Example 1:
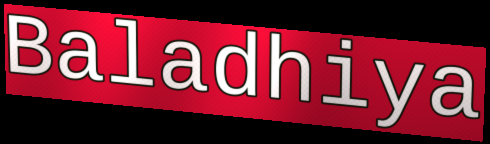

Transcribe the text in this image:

Baladhiya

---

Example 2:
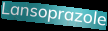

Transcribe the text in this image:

Lansoprazole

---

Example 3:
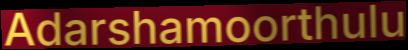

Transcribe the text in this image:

Adarshamoorthulu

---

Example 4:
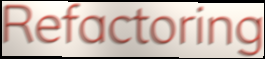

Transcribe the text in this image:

Refactoring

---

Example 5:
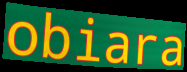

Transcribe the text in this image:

obiara